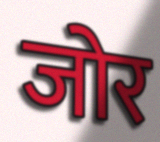
जोर